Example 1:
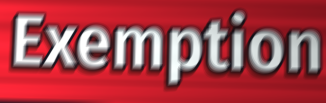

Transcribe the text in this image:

Exemption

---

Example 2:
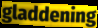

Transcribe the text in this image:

gladdening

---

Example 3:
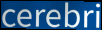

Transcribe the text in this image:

cerebri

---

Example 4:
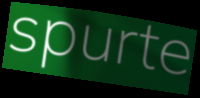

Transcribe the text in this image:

spurte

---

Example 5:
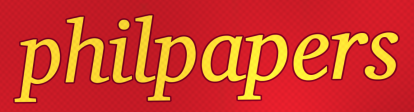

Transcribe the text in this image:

philpapers